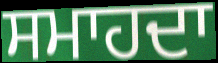
ਸਮਾਹਦਾ